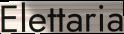
Elettaria